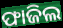
ଫାଜିଲ